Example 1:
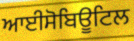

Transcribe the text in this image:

ਆਈਸੋਬਿਊਟਿਲ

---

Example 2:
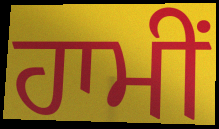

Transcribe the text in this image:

ਹਾਮੀਂ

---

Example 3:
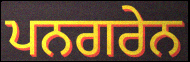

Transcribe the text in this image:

ਪਨਗਰੇਨ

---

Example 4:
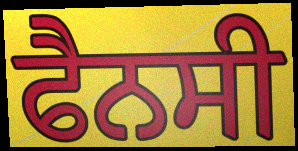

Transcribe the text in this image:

ਫੈਨਸੀ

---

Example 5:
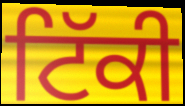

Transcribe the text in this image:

ਟਿੱਕੀ